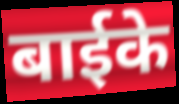
बाईके